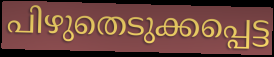
പിഴുതെടുക്കപ്പെട്ട